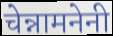
चेन्नामनेनी